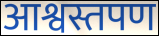
आश्वस्तपण